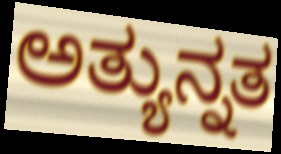
ಅತ್ಯುನ್ನತ